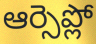
ఆర్సెప్లో